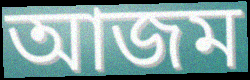
আজম